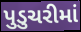
પુડુચરીમાં